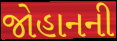
જોહાનની